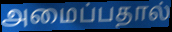
அமைப்பதால்